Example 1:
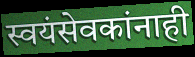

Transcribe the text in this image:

स्वयंसेवकांनाही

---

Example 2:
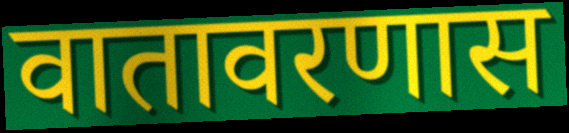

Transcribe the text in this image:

वातावरणास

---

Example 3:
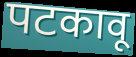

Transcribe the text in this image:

पटकावू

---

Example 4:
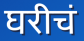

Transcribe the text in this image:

घरीचं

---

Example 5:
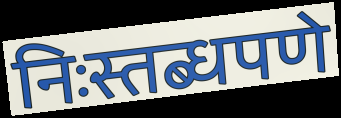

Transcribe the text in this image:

निःस्तब्धपणे